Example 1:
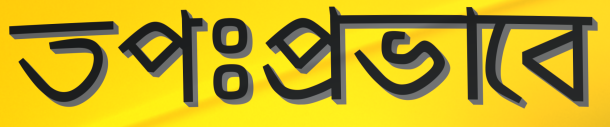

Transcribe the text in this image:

তপঃপ্রভাবে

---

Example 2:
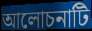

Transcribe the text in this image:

আলোচনাটি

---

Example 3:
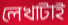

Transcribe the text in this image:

লেখাটাই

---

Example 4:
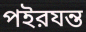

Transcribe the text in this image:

পইরযন্ত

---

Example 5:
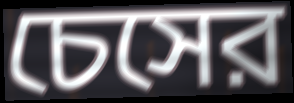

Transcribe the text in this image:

চেসের